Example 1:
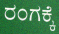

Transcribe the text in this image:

ರಂಗಕ್ಕೆ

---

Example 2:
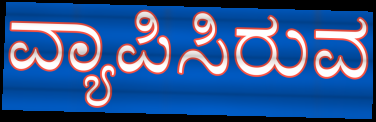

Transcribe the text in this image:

ವ್ಯಾಪಿಸಿರುವ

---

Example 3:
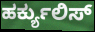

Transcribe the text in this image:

ಹರ್ಕ್ಯುಲಿಸ್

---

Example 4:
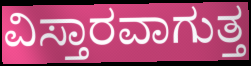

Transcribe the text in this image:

ವಿಸ್ತಾರವಾಗುತ್ತ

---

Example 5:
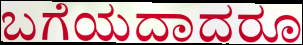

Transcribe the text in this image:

ಬಗೆಯದಾದರೂ